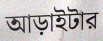
আড়াইটার